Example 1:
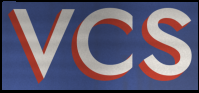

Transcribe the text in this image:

vcs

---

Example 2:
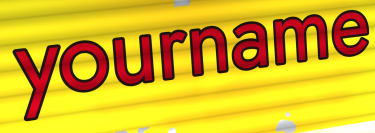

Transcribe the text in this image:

yourname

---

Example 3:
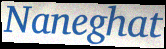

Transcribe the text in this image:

Naneghat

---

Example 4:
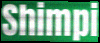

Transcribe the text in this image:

Shimpi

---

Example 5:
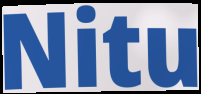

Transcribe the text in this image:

Nitu